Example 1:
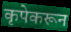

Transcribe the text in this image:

कृपेकरून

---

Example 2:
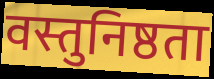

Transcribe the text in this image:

वस्तुनिष्ठता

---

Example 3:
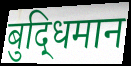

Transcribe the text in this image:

बुद्धिमान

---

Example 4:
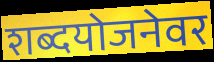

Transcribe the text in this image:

शब्दयोजनेवर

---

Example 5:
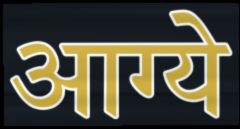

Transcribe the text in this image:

आग्ये